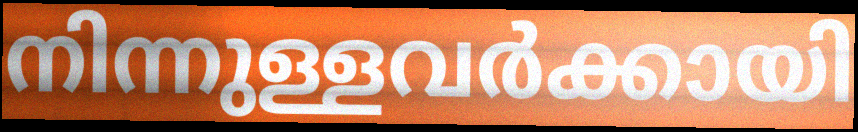
നിന്നുള്ളവർക്കായി